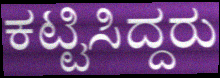
ಕಟ್ಟಿಸಿದ್ದರು